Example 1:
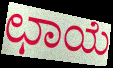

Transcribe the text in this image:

ಛಾಯೆ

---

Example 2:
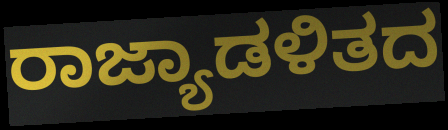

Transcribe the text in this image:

ರಾಜ್ಯಾಡಳಿತದ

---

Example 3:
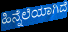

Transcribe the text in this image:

ಹಿನ್ನೆಲೆಯಾಗಿದೆ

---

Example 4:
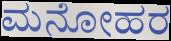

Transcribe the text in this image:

ಮನೋಹರ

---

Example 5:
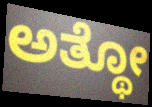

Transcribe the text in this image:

ಅತ್ಥೋ